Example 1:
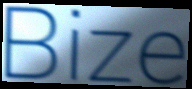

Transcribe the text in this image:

Bize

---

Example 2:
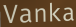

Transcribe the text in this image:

Vanka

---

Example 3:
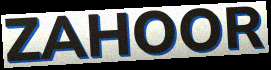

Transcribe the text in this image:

ZAHOOR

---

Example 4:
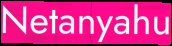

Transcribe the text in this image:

Netanyahu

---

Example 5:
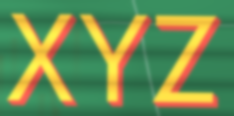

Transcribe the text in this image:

XYZ